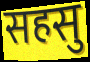
सहसु